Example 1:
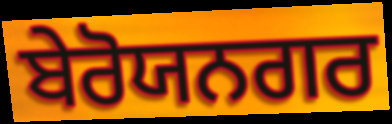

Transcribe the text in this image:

ਬੇਰੋਯਨਗਰ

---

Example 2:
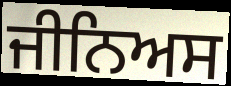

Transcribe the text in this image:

ਜੀਨਿਅਸ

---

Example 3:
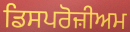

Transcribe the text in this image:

ਡਿਸਪਰੋਜ਼ੀਅਮ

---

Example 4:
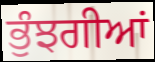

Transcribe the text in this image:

ਭੁੰਝਗੀਆਂ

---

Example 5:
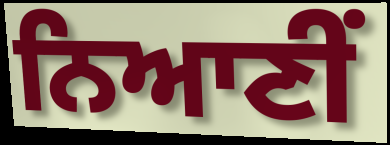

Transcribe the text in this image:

ਨਿਆਣੀਂ